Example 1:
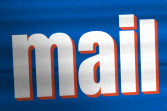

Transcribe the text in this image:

mail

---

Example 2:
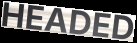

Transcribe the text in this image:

HEADED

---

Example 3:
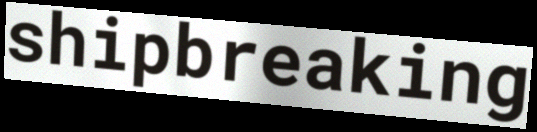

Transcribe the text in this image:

shipbreaking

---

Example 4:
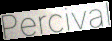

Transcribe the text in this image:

Percival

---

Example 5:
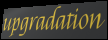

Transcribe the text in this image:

upgradation